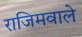
राजिमवाले